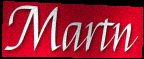
Martn